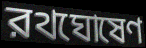
রথঘোষেণ